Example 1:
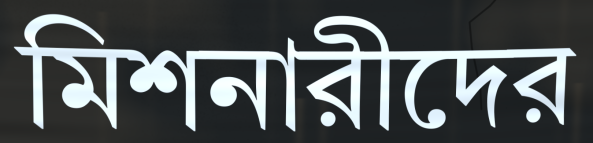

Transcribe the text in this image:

মিশনারীদের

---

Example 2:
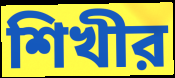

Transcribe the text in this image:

শিখীর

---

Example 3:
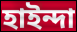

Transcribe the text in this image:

হাইন্দা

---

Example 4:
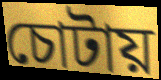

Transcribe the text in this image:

চোটায়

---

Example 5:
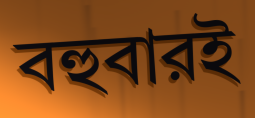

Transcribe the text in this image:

বহুবারই